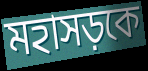
মহাসড়কে